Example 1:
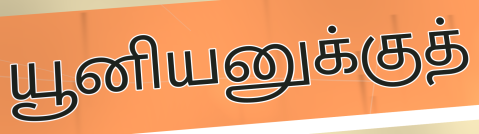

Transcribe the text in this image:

யூனியனுக்குத்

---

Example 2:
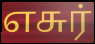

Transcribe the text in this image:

எசுர்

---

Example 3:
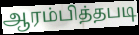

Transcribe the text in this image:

ஆரம்பித்தபடி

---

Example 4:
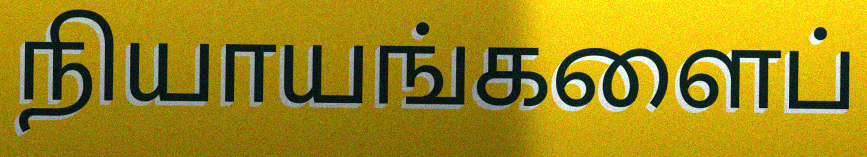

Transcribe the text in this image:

நியாயங்களைப்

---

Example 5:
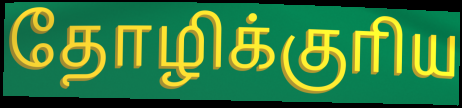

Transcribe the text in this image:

தோழிக்குரிய